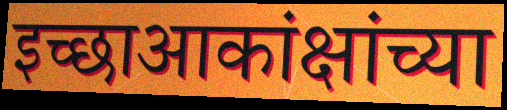
इच्छाआकांक्षांच्या